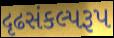
દૃઢસંકલ્પરૂપ